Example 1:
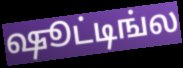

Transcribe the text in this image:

ஷூட்டிங்ல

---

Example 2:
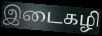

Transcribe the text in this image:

இடைகழி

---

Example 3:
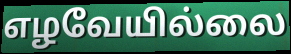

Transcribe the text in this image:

எழவேயில்லை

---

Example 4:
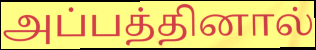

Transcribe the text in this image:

அப்பத்தினால்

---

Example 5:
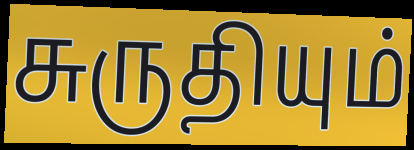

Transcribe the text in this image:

சுருதியும்